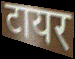
टायर